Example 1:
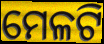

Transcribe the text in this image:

ମେଳଟି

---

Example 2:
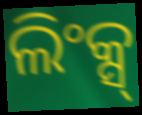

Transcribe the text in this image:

ଲିଂକ୍ସ୍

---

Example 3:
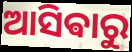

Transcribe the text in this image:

ଆସିଵାରୁ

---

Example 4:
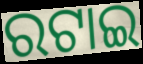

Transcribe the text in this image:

ରଟାଇ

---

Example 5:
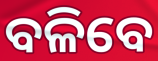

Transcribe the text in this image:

ବଳିବେ